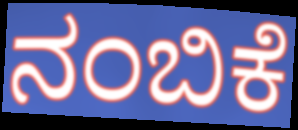
ನಂಬಿಕೆ